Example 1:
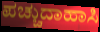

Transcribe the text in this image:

ಪಚ್ಚುದಾಹಾಸಿ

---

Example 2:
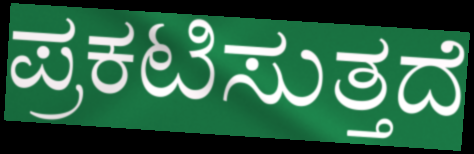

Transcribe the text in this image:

ಪ್ರಕಟಿಸುತ್ತದೆ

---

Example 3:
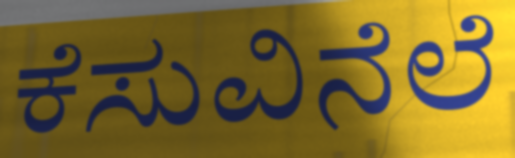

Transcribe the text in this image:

ಕೆಸುವಿನೆಲೆ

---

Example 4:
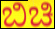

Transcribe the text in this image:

ಬಿಚಿ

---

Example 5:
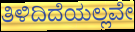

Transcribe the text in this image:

ತಿಳಿದಿದೆಯಲ್ಲವೇ